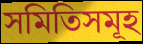
সমিতিসমূহ